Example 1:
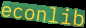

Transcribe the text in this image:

econlib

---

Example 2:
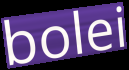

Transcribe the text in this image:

bolei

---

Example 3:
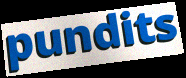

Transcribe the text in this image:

pundits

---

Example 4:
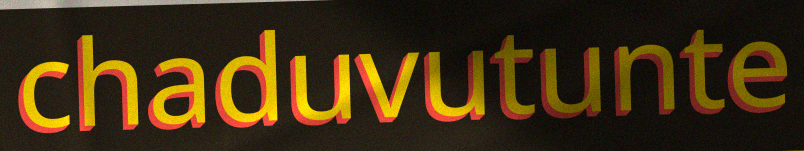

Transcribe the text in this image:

chaduvutunte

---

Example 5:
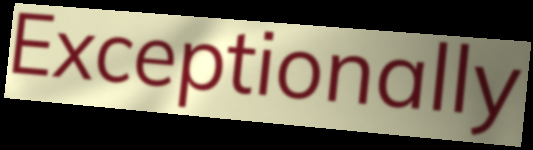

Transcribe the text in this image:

Exceptionally